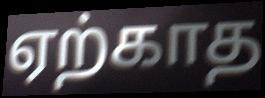
ஏற்காத